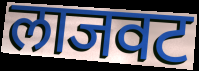
लाजवट